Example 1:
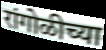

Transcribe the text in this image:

रांगोळीच्या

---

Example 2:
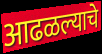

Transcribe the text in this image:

आढळल्याचे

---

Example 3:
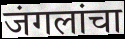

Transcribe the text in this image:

जंगलांचा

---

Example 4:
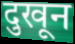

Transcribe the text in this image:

दुखून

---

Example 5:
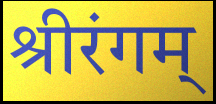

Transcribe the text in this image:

श्रीरंगम्